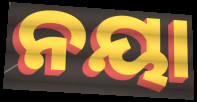
ନୟା